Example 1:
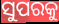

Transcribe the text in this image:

ସୁପରକୁ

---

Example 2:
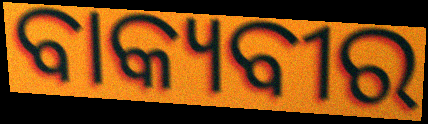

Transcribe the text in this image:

ବାକ୍ୟବୀର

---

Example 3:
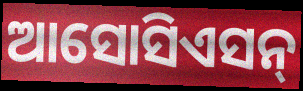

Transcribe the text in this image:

ଆସୋସିଏସନ୍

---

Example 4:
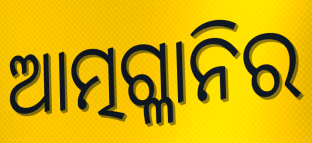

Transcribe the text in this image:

ଆତ୍ମଗ୍ଳାନିର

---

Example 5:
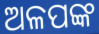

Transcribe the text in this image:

ଅଳପଙ୍କ